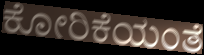
ಕೋರಿಕೆಯಂತೆ